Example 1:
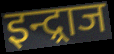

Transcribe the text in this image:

इन्द्र्राज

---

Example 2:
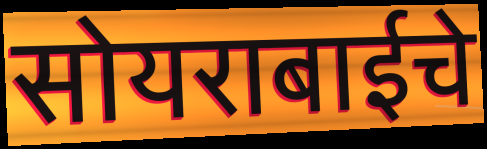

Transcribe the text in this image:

सोयराबाईचे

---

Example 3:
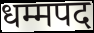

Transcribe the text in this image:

धम्मपद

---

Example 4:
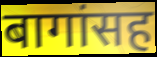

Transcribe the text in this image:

बागांसह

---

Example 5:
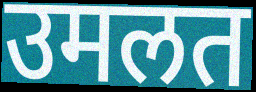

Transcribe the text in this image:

उमलत